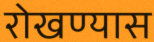
रोखण्यास